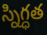
స్నిగ్ధత